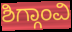
ಶಿಗ್ಗಾಂವಿ